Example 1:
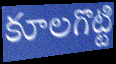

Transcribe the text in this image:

కూలగొట్టి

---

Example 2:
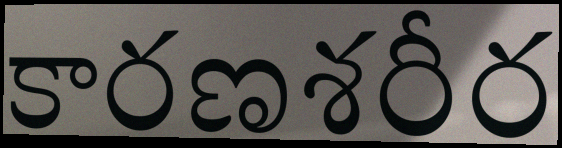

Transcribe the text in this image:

కారణశరీర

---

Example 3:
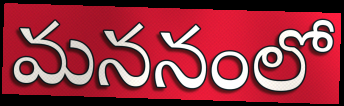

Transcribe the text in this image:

మననంలో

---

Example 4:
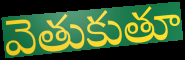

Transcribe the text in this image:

వెతుకుతూ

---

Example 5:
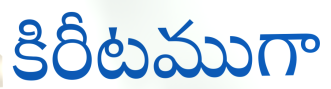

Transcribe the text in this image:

కిరీటముగా